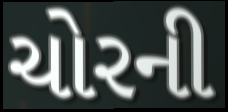
ચોરની